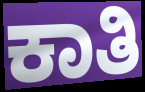
ಕಾತಿ